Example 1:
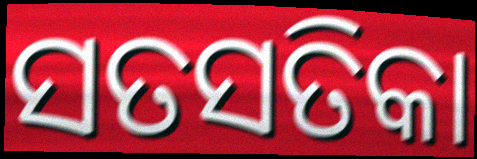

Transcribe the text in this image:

ସତସତିକା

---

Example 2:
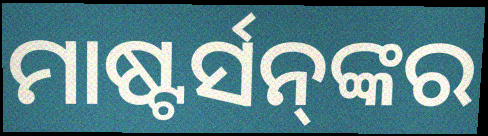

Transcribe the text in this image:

ମାଷ୍ଟର୍ସନ୍‌ଙ୍କର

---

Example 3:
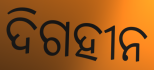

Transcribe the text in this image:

ଦିଗହୀନ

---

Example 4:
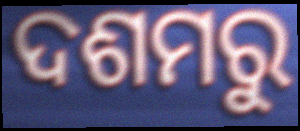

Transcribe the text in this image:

ଦଶମରୁ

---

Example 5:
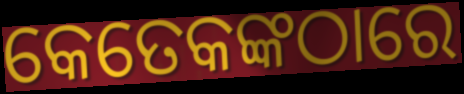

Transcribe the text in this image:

କେତେକଙ୍କଠାରେ